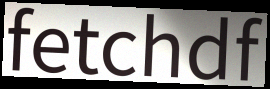
fetchdf